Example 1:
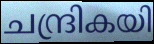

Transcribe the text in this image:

ചന്ദ്രികയി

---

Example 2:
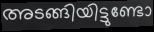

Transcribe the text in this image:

അടങ്ങിയിട്ടുണ്ടോ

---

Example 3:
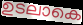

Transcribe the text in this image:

ഉടലാകെ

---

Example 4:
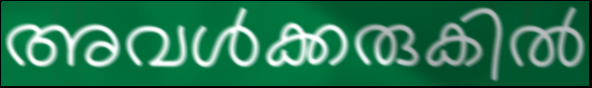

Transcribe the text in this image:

അവൾക്കരുകിൽ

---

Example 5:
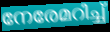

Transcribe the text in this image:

നേരേമറിച്ച്